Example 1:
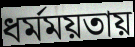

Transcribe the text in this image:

ধর্মময়তায়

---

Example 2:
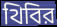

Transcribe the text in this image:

থিবির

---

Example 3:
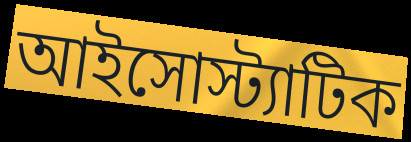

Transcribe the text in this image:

আইসোস্ট্যাটিক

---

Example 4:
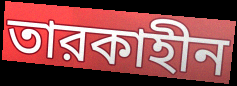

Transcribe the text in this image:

তারকাহীন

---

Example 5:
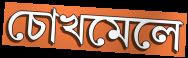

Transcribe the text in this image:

চোখমেলে